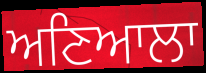
ਅਣਿਆਲਾ